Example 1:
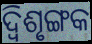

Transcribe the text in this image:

ଦ୍ବିଶୃଙ୍ଗକ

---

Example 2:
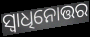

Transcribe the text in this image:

ସ୍ୱାଧିନୋତ୍ତର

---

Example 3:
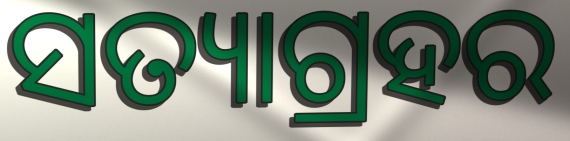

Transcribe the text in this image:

ସତ୍ୟାଗ୍ରହର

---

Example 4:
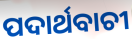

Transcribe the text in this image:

ପଦାର୍ଥବାଚୀ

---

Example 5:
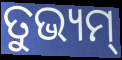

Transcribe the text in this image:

ତୁଭ୍ୟମ୍